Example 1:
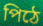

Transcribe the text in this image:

পিঠে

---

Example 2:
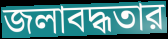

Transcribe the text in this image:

জলাবদ্ধতার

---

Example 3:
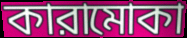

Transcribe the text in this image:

কারামোকা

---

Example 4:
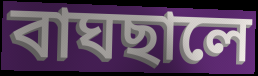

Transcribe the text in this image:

বাঘছালে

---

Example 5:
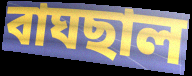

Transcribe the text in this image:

বাঘছাল